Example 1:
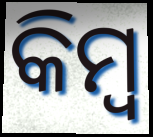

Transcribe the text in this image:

କିମ୍ବ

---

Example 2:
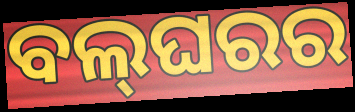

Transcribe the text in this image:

ବଲ୍‌ଘରର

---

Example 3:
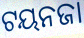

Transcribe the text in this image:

ଟୟନଜା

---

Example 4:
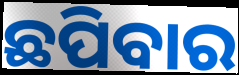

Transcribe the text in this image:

ଛପିବାର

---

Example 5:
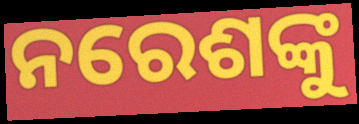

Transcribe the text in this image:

ନରେଶଙ୍କୁ